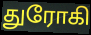
துரோகி